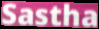
Sastha